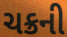
ચક્રની